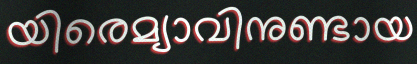
യിരെമ്യാവിനുണ്ടായ